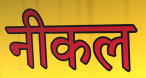
नीकल